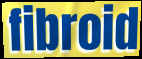
fibroid